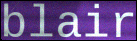
blair